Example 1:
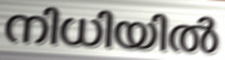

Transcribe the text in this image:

നിധിയിൽ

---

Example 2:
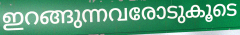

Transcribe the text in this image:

ഇറങ്ങുന്നവരോടുകൂടെ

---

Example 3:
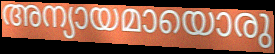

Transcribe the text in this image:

അന്യായമായൊരു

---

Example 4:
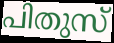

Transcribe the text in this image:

പിതുസ്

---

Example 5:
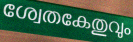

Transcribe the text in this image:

ശ്വേതകേതുവും